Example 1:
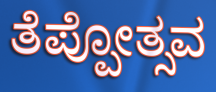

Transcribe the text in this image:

ತೆಪ್ಪೋತ್ಸವ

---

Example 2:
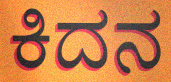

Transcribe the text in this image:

ಕಿದನ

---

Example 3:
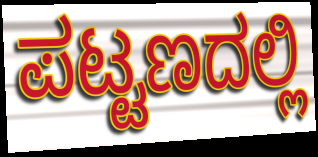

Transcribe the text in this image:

ಪಟ್ಟಣದಲ್ಲಿ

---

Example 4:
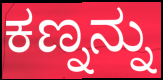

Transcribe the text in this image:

ಕಣ್ನನ್ನು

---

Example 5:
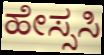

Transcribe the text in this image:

ಹೇಸ್ಸಸಿ